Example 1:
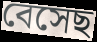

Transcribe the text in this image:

বেসেছ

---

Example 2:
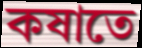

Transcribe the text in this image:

কষাতে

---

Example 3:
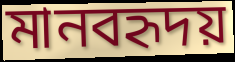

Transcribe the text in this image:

মানবহৃদয়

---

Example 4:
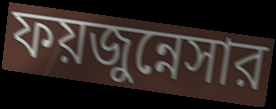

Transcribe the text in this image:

ফয়জুন্নেসার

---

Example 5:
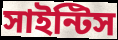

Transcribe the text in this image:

সাইন্টিস